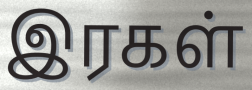
இரகள்